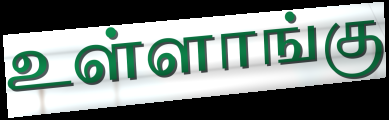
உள்ளாங்கு